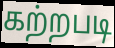
கற்றபடி